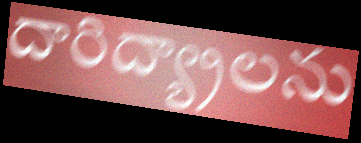
దారిద్య్రాలను